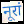
नूरां